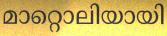
മാറ്റൊലിയായി